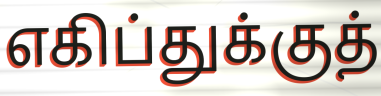
எகிப்துக்குத்